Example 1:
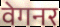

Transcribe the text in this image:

वेगनर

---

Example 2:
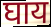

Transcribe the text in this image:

घाय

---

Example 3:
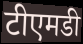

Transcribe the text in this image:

टीएमडी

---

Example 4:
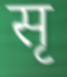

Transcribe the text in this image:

सृ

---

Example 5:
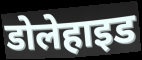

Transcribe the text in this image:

डोलेहाइड